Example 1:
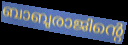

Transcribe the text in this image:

ബാബുരാജിന്റെ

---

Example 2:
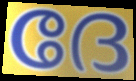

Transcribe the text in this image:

ദേ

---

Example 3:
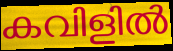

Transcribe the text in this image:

കവിളിൽ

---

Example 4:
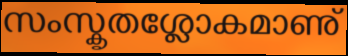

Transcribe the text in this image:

സംസ്കൃതശ്ലോകമാണു്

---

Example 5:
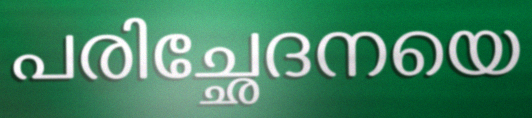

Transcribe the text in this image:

പരിച്ഛേദനയെ